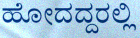
ಹೋದದ್ದರಲ್ಲಿ